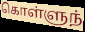
கொள்ளுந்